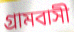
গ্রামবাসী